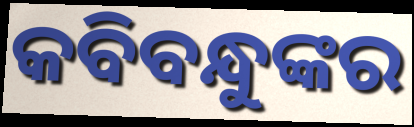
କବିବନ୍ଧୁଙ୍କର